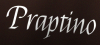
Praptino